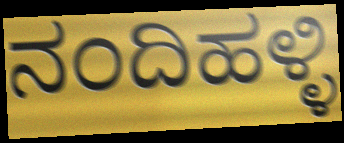
ನಂದಿಹಳ್ಳಿ